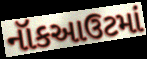
નૉકઆઉટમાં